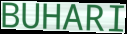
BUHARI